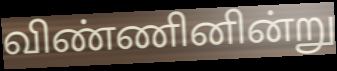
விண்ணினின்று